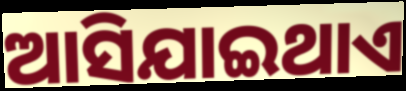
ଆସିଯାଇଥାଏ